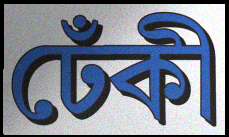
ঢেঁকী